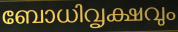
ബോധിവൃക്ഷവും